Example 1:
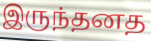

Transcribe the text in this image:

இருந்தனத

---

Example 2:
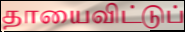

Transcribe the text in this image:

தாயைவிட்டுப்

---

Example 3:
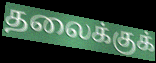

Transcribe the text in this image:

தலைக்குக்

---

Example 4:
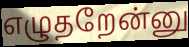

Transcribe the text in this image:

எழுதறேன்னு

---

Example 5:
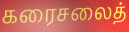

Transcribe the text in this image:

கரைசலைத்